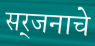
सर्जनाचे